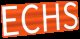
ECHS